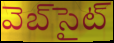
వెబ్‌సైట్